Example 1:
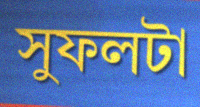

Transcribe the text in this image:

সুফলটা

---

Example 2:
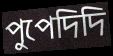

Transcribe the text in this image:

পুপেদিদি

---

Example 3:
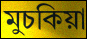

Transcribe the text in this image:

মুচকিয়া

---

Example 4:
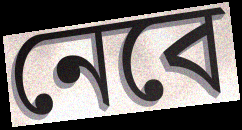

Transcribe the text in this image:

নেবে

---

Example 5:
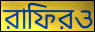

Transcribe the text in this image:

রাফিরও